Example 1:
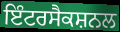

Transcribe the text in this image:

ਇੰਟਰਸੈਕਸ਼ਨਲ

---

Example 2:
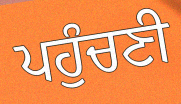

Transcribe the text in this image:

ਪਹੁੰਚਣੀ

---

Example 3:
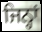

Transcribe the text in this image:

ਜਿਨ੍ਹਾਂ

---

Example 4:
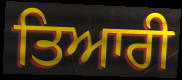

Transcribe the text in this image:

ਤਿਆਰੀ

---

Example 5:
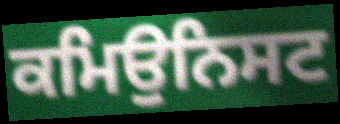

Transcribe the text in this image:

ਕਮਿਉਨਿਸਟ